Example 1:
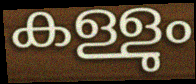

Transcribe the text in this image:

കള്ളും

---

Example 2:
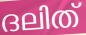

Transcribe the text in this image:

ദലിത്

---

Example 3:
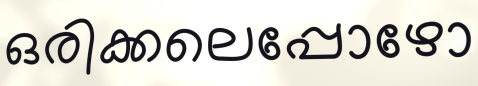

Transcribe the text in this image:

ഒരിക്കലെപ്പോഴോ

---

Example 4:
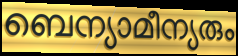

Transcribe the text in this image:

ബെന്യാമീന്യരും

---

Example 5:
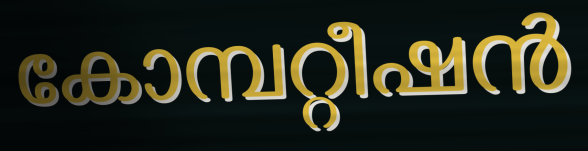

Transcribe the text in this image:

കോമ്പറ്റീഷൻ